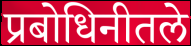
प्रबोधिनीतले